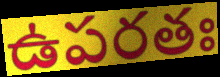
ఉపరతః